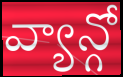
వ్యాన్గో